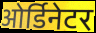
ओर्डिनेटर